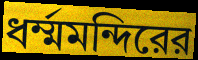
ধর্ম্মমন্দিরের